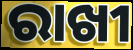
ରାଖୀ